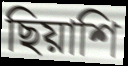
ছিয়াশি